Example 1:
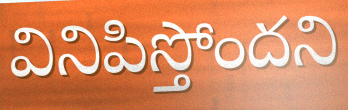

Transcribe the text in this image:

వినిపిస్తోందని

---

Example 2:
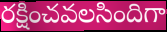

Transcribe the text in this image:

రక్షించవలసిందిగా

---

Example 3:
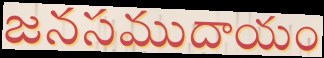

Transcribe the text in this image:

జనసముదాయం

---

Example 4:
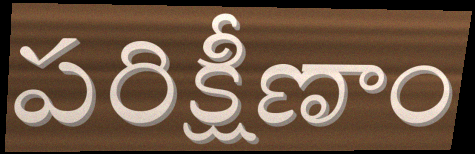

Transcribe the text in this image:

పరిక్షీణాం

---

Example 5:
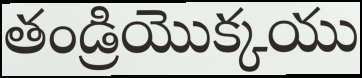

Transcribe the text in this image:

తండ్రియొక్కయు